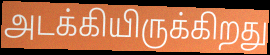
அடக்கியிருக்கிறது